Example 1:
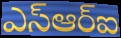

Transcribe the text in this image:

ఎస్ఆర్ఐ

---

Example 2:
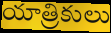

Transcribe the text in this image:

యాత్రికులు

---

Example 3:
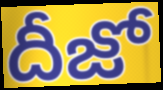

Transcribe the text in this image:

దీజో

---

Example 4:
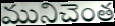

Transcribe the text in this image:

మునిచెంత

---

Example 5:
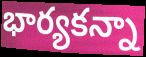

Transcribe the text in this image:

భార్యకన్నా